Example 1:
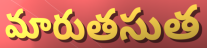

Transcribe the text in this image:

మారుతసుత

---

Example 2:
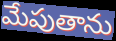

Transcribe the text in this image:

మేపుతాను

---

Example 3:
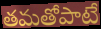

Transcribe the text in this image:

తమతోపాటే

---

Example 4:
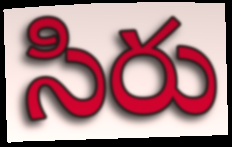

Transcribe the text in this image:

సిరు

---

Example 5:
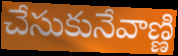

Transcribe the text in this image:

చేసుకునేవాణ్ణి